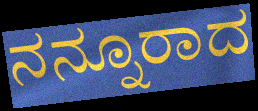
ನನ್ನೂರಾದ